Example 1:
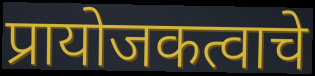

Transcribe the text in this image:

प्रायोजकत्वाचे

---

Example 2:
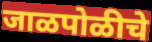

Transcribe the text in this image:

जाळपोळीचे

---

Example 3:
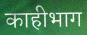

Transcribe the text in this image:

काहीभाग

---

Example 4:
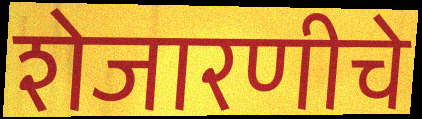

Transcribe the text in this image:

शेजारणीचे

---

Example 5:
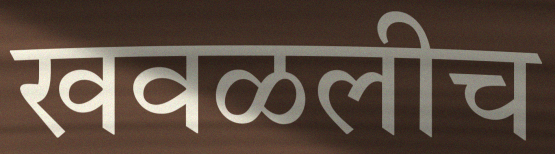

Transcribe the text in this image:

खवळलीच